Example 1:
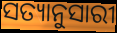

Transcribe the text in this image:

ସତ୍ୟାନୁସାରୀ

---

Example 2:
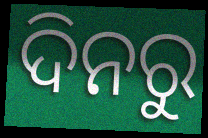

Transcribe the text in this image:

ଦିନରୁ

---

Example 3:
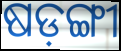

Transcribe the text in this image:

ଷଡ଼ଙ୍ଗୀ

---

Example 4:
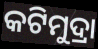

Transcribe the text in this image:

କଟିମୁଦ୍ରା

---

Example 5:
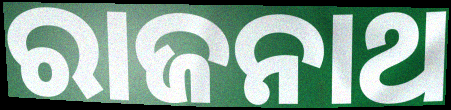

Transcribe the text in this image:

ରାଜନାଥ